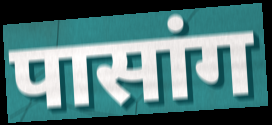
पासांग